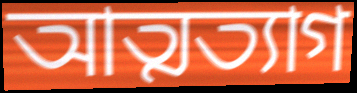
আত্মত্যাগ